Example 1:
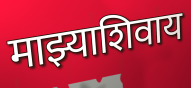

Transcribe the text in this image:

माझ्याशिवाय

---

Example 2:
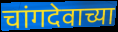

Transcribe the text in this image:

चांगदेवाच्या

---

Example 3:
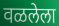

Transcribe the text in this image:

वळलेला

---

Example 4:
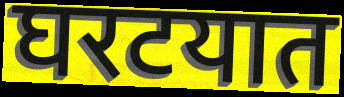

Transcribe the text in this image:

घरटयात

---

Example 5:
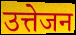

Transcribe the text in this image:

उत्तेजन